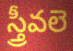
స్త్రీవలె